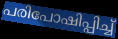
പരിപോഷിപ്പിച്ച്